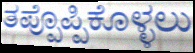
ತಪ್ಪೊಪ್ಪಿಕೊಳ್ಳಲು